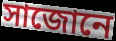
সাজোনে